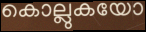
കൊല്ലുകയോ